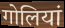
गोलियां